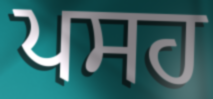
ਪਸਹ